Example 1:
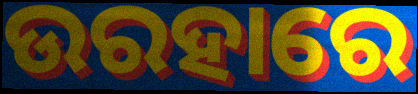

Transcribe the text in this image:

ଉରହାରେ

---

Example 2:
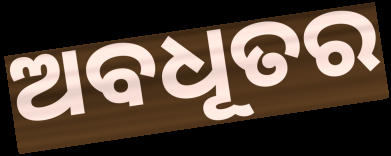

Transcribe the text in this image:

ଅବଧୂତର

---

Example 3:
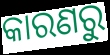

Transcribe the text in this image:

କାରଣରୁ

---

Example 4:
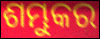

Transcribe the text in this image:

ଶମ୍ଭୁକର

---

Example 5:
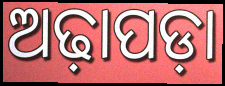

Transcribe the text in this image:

ଅଢ଼ାପଡ଼ା